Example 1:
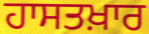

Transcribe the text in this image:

ਹਾਸਤਖ਼ਾਰ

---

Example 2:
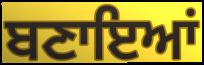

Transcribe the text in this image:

ਬਣਾਇਆਂ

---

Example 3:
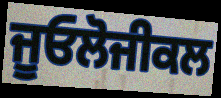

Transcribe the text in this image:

ਜੂਓਲੋਜੀਕਲ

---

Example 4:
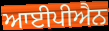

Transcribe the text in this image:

ਆਈਪੀਐਨ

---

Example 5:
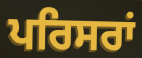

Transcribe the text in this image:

ਪਰਿਸਰਾਂ